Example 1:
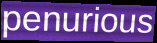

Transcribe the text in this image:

penurious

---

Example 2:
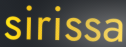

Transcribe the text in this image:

sirissa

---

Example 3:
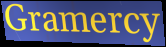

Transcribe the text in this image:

Gramercy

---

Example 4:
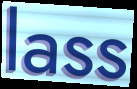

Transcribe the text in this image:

lass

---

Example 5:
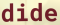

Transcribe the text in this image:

dide